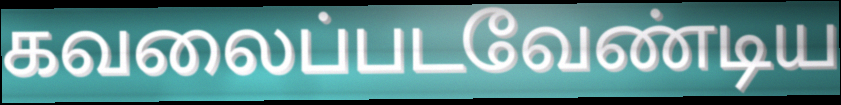
கவலைப்படவேண்டிய